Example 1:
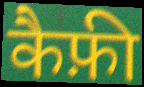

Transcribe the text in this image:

कैफ़ी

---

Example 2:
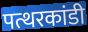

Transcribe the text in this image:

पत्थरकांडी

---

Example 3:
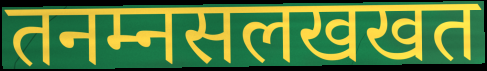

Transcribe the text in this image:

तनम्नसलखखत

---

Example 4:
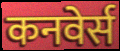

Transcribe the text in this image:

कनवेर्स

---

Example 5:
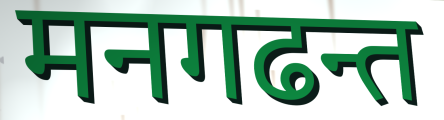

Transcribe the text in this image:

मनगढन्त